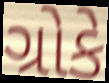
ગ્રોકે